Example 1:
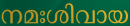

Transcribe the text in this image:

നമഃശിവായ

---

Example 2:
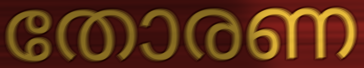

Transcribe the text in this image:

തോരണ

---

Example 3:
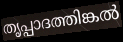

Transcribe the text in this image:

തൃപ്പാദത്തിങ്കൽ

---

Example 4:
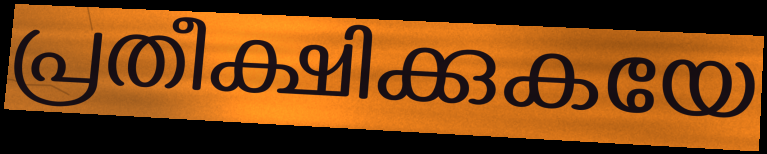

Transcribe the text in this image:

പ്രതീക്ഷിക്കുകയേ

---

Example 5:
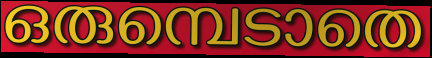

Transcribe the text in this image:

ഒരുമ്പെടാതെ